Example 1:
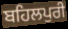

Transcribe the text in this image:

ਬਹਿਲਪੁਰੀ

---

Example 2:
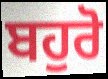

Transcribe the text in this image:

ਬਹੁਰੋ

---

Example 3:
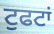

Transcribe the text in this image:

ਟੁਫਟਾਂ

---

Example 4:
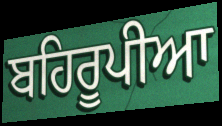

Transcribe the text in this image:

ਬਹਿਰੂਪੀਆ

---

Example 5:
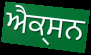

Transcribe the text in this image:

ਐਕ੍ਸਨ